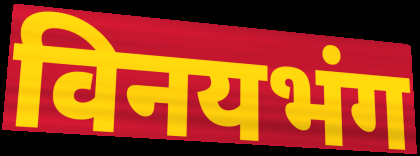
विनयभंग